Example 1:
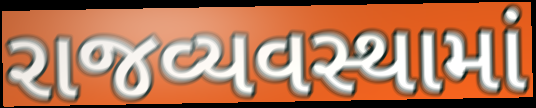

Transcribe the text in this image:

રાજવ્યવસ્થામાં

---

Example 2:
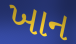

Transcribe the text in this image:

ખાન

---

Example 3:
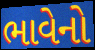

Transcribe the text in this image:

ભાવેનો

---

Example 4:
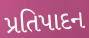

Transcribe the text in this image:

પ્રતિપાદન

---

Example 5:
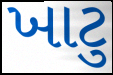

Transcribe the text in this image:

ખાટુ